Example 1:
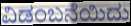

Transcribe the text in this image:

ವಿಡಂಬನೆಯಿದು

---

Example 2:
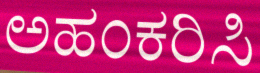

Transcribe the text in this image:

ಅಹಂಕರಿಸಿ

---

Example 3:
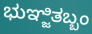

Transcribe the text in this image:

ಭುಞ್ಜಿತಬ್ಬಂ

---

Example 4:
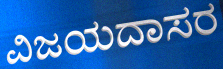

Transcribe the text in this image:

ವಿಜಯದಾಸರ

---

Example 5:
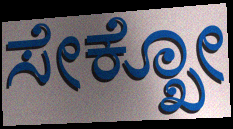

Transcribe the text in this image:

ಸೇಕ್ಖೋ